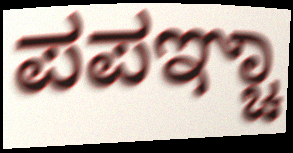
ಪಪಞ್ಚಾ